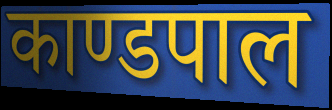
काण्डपाल